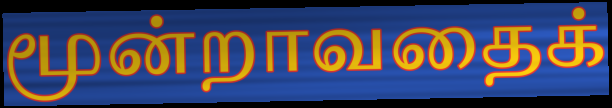
மூன்றாவதைக்